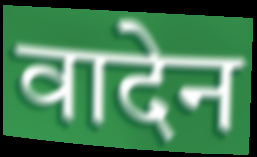
वादेन